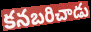
కనబరిచాడు